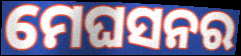
ମେଘସନର